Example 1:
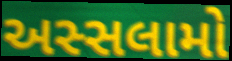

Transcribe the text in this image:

અસ્સલામો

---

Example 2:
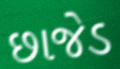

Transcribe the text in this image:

છાજેડ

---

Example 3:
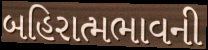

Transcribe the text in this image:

બહિરાત્મભાવની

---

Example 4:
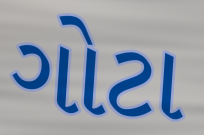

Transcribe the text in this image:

ગોટા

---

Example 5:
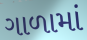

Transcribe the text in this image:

ગાળામાં